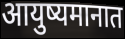
आयुष्यमानात